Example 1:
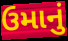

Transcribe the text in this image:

ઉમાનું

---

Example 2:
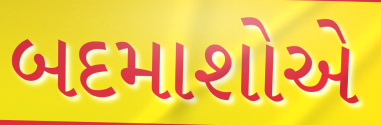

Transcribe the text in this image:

બદમાશોએ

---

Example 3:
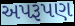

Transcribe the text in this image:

અપરૂપણ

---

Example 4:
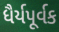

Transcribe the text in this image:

ધૈર્યપૂર્વક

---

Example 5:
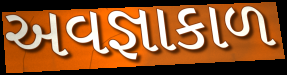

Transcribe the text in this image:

અવજ્ઞાકાળ